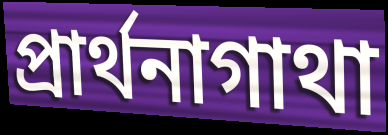
প্রার্থনাগাথা